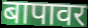
बापावर